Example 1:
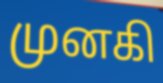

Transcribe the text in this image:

முனகி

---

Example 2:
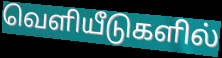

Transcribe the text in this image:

வெளியீடுகளில்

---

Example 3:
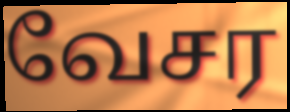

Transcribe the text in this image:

வேசர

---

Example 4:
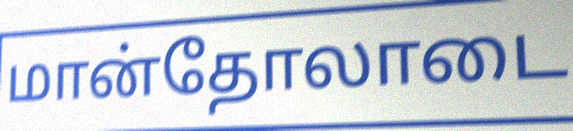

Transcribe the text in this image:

மான்தோலாடை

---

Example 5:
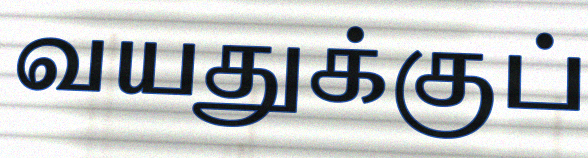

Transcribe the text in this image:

வயதுக்குப்